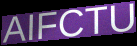
AIFCTU